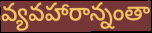
వ్యవహారాన్నంతా